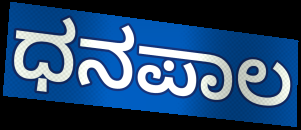
ಧನಪಾಲ